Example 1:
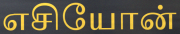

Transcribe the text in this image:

எசியோன்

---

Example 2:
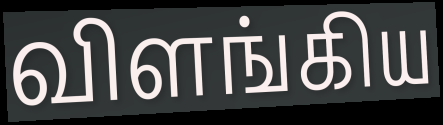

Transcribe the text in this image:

விளங்கிய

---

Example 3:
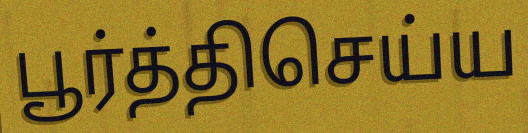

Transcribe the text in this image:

பூர்த்திசெய்ய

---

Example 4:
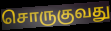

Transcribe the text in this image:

சொருகுவது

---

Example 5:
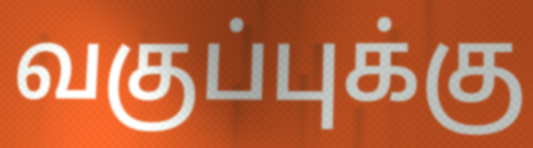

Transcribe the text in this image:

வகுப்புக்கு